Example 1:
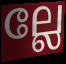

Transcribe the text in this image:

ല്ലേ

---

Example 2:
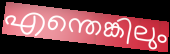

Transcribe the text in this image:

എന്തെങ്കിലും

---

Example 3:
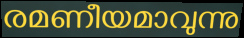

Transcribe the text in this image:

രമണീയമാവുന്നു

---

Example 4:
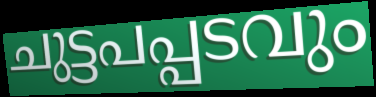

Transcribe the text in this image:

ചുട്ടപപ്പടവും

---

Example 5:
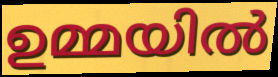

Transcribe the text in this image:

ഉമ്മയിൽ